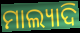
ମାଲ୍ୟାଦି